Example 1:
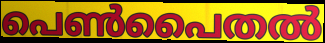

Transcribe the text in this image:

പെൺപൈതൽ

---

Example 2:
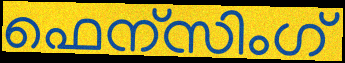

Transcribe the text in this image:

ഫെന്സിംഗ്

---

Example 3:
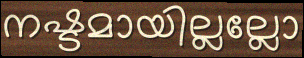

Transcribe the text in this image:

നഷ്ടമായില്ലല്ലോ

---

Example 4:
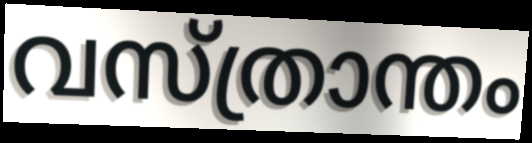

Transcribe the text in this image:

വസ്ത്രാന്തം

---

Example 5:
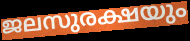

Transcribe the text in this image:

ജലസുരക്ഷയും